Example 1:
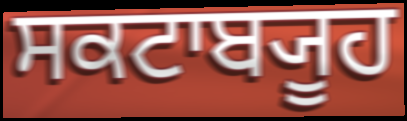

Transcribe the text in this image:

ਸਕਟਾਬ੍ਯੂਹ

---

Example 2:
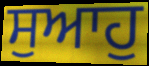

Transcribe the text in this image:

ਸੁਆਹੁ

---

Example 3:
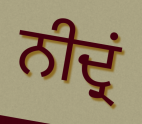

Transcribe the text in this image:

ਨੀਦ੍ਰਂ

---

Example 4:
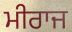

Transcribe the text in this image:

ਮੀਰਾਜ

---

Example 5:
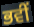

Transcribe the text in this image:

ਭਵੀਂ